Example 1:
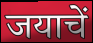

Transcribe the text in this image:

जयाचें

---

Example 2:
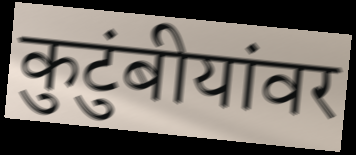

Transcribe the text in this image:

कुटुंबीयांवर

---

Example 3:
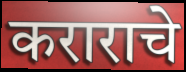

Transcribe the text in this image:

कराराचे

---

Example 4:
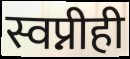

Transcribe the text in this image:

स्वप्नीही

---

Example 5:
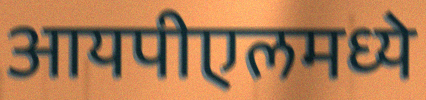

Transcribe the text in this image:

आयपीएलमध्ये